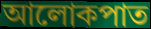
আলোকপাত